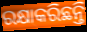
ରକ୍ଷାକରିଛନ୍ତି